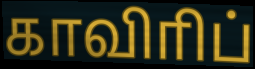
காவிரிப்